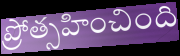
ప్రోత్సహించింది